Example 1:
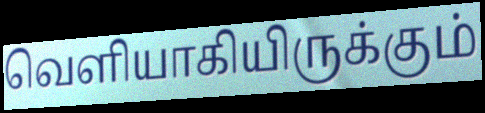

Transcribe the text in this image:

வெளியாகியிருக்கும்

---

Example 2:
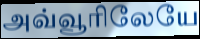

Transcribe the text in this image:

அவ்வூரிலேயே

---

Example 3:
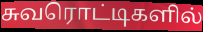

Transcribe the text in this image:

சுவரொட்டிகளில்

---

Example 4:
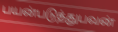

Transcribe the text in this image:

பயன்படுத்துபவன்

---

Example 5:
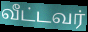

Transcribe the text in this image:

வீட்டவர்